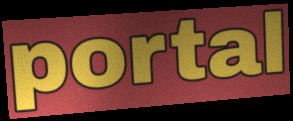
portal